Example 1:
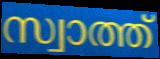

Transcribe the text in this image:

സ്വാത്ത്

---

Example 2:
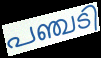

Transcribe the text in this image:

പഞ്ചടി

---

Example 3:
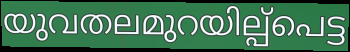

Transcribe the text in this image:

യുവതലമുറയില്പ്പെട്ട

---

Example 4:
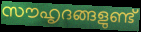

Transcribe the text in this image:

സൗഹൃദങ്ങളുണ്ട്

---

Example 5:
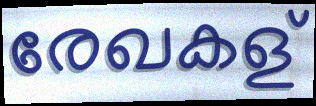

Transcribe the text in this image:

രേഖകള്